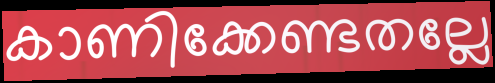
കാണിക്കേണ്ടതല്ലേ